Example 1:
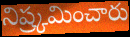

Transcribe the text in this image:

నిష్ర్కమించారు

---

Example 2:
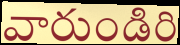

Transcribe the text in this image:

వారుండిరి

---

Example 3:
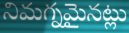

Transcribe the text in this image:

నిమగ్నమైనట్లు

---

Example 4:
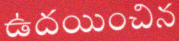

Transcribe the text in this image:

ఉదయించిన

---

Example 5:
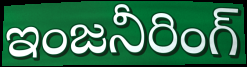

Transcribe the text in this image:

ఇంజనీరింగ్